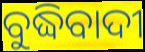
ବୁଦ୍ଧିବାଦୀ